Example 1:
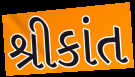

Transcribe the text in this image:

શ્રીકાંત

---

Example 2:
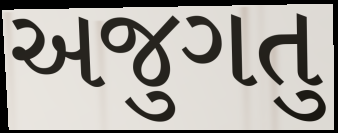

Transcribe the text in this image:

અજુગતુ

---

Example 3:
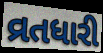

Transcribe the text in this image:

વ્રતધારી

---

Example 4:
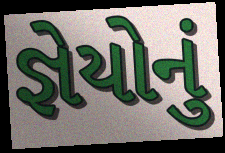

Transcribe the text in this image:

જ્ઞેયોનું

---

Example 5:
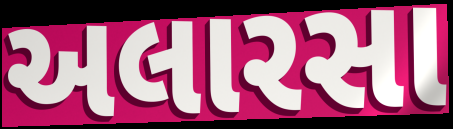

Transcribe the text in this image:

અલારસા